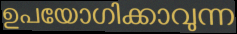
ഉപയോഗിക്കാവുന്ന